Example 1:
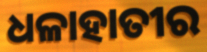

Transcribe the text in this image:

ଧଳାହାତୀର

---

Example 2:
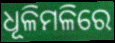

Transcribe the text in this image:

ଧୂଳିମଳିରେ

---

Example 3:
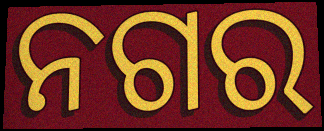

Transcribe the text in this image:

ନଗର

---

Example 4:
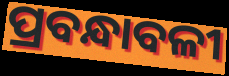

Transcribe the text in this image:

ପ୍ରବନ୍ଧାବଳୀ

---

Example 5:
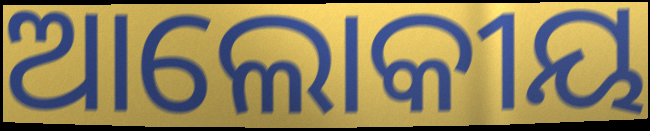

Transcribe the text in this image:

ଆଲୋକୀୟ